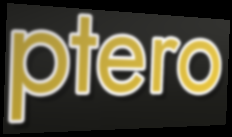
ptero